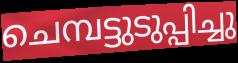
ചെമ്പട്ടുടുപ്പിച്ചു